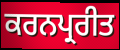
ਕਰਨਪ੍ਰਰੀਤ